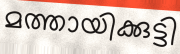
മത്തായിക്കുട്ടി